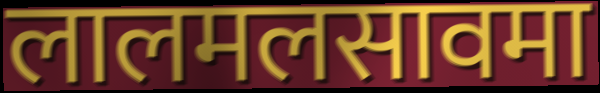
लालमलसावमा